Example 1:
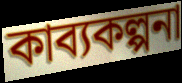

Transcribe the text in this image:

কাব্যকল্পনা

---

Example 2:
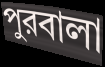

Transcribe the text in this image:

পুরবালা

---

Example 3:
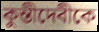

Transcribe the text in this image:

কুন্তীদেবীকে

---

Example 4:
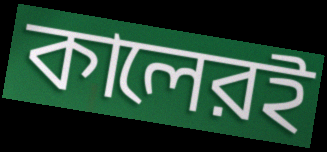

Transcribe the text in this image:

কালেরই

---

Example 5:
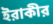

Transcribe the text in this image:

ইরাকীর